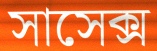
সাসেক্স